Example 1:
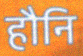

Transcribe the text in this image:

हौनि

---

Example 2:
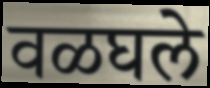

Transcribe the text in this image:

वळघले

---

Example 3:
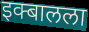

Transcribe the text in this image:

इक्बालला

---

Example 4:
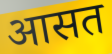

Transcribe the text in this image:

आसत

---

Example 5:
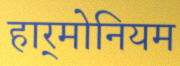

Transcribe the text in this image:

हार्मोनियम